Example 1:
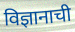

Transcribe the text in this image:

विज्ञानाची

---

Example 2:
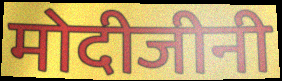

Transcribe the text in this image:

मोदीजीनी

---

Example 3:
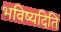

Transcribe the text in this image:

भविष्यदिति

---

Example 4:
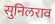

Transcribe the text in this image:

सुनिलराव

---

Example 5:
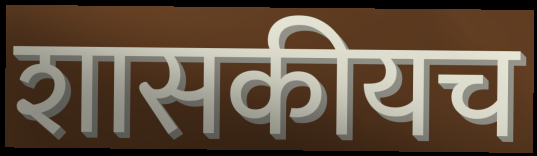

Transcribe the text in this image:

शासकीयच